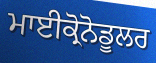
ਮਾਈਕ੍ਰੋਨੋਡੂਲਰ